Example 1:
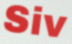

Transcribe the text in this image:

Siv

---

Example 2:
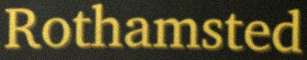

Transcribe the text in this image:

Rothamsted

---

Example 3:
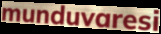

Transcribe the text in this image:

munduvaresi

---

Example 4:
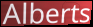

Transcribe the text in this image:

Alberts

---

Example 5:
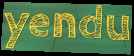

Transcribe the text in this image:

yendu